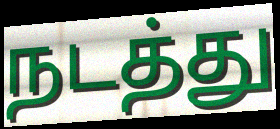
நடத்து